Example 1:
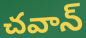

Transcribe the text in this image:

చవాన్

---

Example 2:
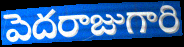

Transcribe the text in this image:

పెదరాజుగారి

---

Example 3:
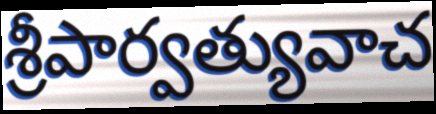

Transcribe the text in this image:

శ్రీపార్వత్యువాచ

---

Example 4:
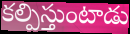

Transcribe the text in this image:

కల్పిస్తుంటాడు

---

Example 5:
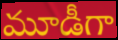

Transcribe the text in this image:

మూడీగా